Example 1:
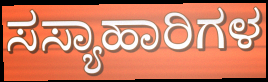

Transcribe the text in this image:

ಸಸ್ಯಾಹಾರಿಗಳ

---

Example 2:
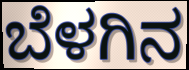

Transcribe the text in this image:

ಬೆಳಗಿನ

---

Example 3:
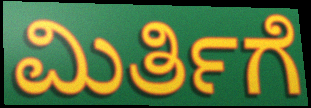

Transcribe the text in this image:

ಮಿರ್ತಿಗೆ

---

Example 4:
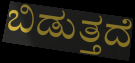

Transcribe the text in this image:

ಬಿಡುತ್ತದೆ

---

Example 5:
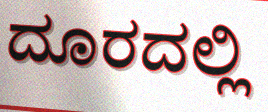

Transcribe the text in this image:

ದೂರದಲ್ಲಿ